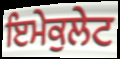
ਇਮੇਕੁਲੇਟ